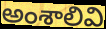
అంశాలివి